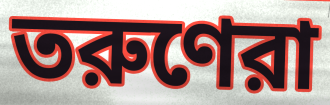
তরুণেরা